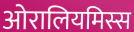
ओरालियमिस्स